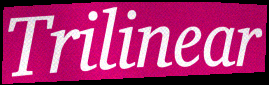
Trilinear